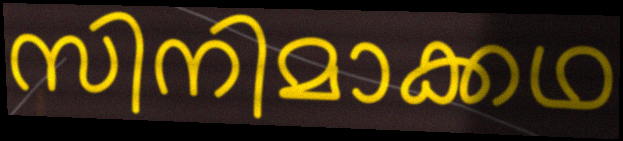
സിനിമാക്കഥ